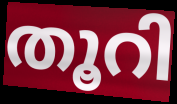
തൂറി